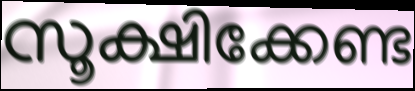
സൂക്ഷിക്കേണ്ട